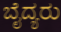
ಬೈದ್ಯರು